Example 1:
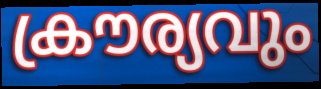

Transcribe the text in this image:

ക്രൗര്യവും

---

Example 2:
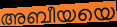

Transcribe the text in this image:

അബീയയെ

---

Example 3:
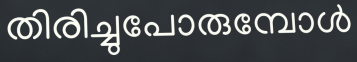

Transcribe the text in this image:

തിരിച്ചുപോരുമ്പോൾ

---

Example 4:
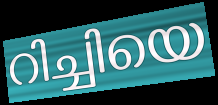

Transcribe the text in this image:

റിച്ചിയെ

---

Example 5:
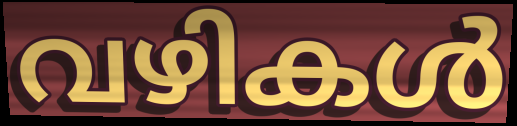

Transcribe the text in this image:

വഴികൾ